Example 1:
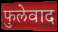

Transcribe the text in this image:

फुलेवाद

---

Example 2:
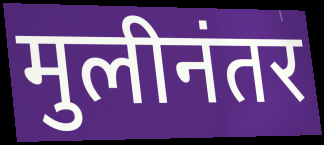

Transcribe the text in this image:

मुलीनंतर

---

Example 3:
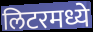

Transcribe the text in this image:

लिटरमध्ये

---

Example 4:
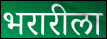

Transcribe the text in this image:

भरारीला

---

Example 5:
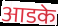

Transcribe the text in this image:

आडके